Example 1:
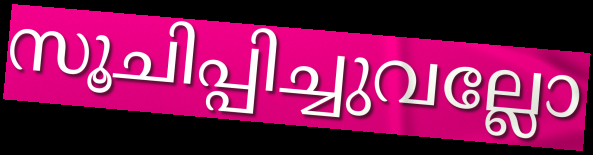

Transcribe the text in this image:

സൂചിപ്പിച്ചുവല്ലോ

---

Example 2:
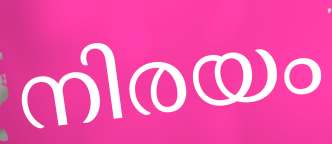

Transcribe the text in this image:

നിരയം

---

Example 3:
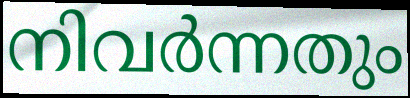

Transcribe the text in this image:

നിവർന്നതും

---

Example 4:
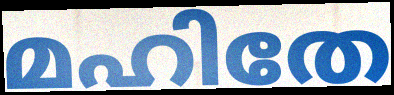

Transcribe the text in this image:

മഹിതേ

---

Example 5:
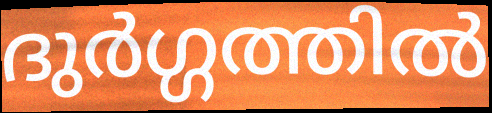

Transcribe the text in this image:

ദുർഗ്ഗത്തിൽ